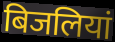
बिजलियां